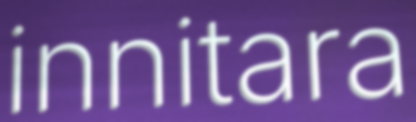
innitara